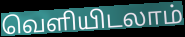
வெளியிடலாம்